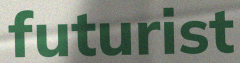
futurist